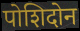
पोशिदोन